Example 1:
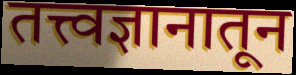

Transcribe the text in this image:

तत्त्वज्ञानातून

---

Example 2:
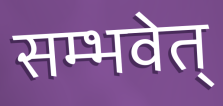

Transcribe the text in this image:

सम्भवेत्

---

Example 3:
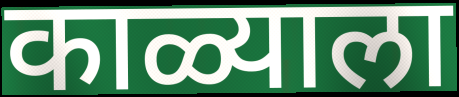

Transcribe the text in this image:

काळ्याला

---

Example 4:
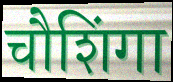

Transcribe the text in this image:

चौशिंगा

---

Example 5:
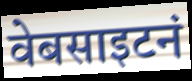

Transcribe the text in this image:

वेबसाइटनं